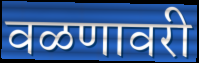
वळणावरी